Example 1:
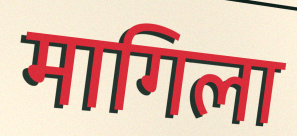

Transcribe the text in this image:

मागिला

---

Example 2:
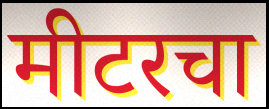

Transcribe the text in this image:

मीटरचा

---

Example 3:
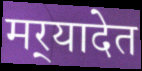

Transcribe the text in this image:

मर्यादेत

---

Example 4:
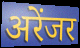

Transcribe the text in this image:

अरेंजर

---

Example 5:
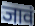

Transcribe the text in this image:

जावं